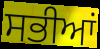
ਸਭੀਆਂ